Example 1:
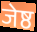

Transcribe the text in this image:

जेष्ठ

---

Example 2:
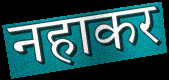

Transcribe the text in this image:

नहाकर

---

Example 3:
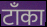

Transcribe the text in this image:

टाँका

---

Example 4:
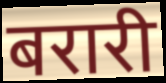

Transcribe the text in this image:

बरारी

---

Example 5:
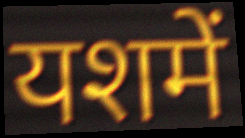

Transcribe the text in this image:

यशमें